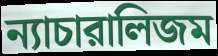
ন্যাচারালিজম